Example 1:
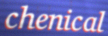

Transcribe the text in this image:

chenical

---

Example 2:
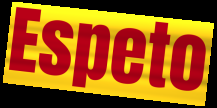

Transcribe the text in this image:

Espeto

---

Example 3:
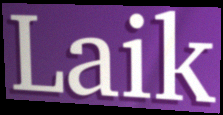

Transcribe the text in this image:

Laik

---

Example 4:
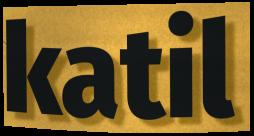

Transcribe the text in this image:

katil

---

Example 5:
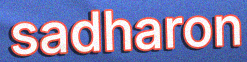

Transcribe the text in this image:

sadharon